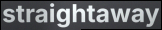
straightaway